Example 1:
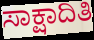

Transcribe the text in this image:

ಸಾಕ್ಷಾದಿತಿ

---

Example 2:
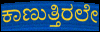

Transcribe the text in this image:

ಕಾಣುತ್ತಿರಲೇ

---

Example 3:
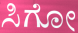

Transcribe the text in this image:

ಸಿಗೋ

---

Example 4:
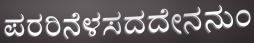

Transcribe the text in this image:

ಪರರಿನೆಳಸದದೇನನುಂ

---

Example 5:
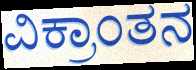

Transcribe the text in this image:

ವಿಕ್ರಾಂತನ